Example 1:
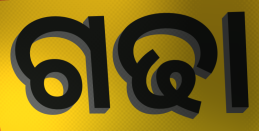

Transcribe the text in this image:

ଗଢା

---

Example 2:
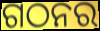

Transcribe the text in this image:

ଗଠନର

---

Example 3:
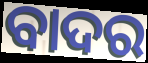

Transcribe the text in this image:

ବାଦର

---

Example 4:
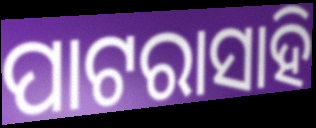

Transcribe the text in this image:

ପାଟରାସାହି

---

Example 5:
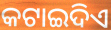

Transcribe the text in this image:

କଟାଇଦିଏ